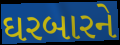
ઘરબારને